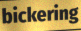
bickering